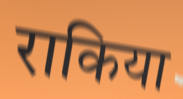
राकिया